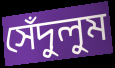
সেঁদুলুম